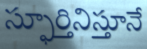
స్ఫూర్తినిస్తూనే